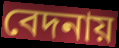
বেদনায়